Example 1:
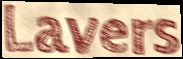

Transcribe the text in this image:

Lavers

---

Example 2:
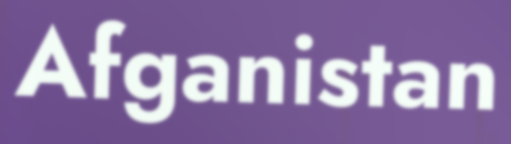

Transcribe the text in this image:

Afganistan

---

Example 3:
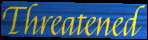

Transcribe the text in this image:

Threatened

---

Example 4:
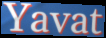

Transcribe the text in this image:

Yavat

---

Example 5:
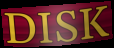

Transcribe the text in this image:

DISK